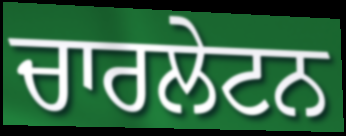
ਚਾਰਲੇਟਨ